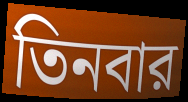
তিনবার